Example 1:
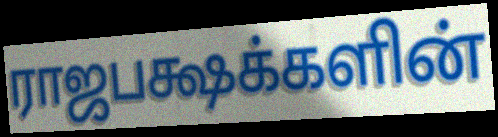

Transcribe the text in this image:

ராஜபக்ஷக்களின்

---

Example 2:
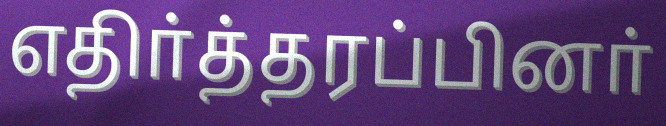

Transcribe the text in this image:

எதிர்த்தரப்பினர்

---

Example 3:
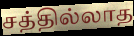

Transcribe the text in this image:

சத்தில்லாத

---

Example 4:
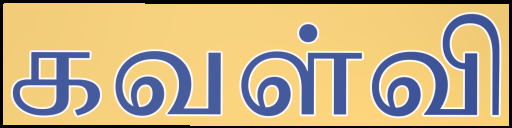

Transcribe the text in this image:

கவள்வி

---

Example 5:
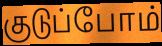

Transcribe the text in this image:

குடுப்போம்